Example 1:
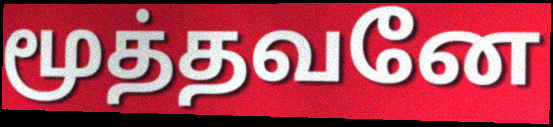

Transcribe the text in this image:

மூத்தவனே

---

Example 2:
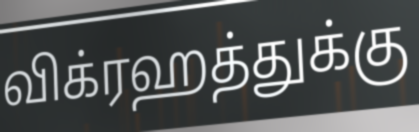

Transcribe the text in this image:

விக்ரஹத்துக்கு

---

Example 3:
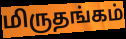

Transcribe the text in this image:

மிருதங்கம்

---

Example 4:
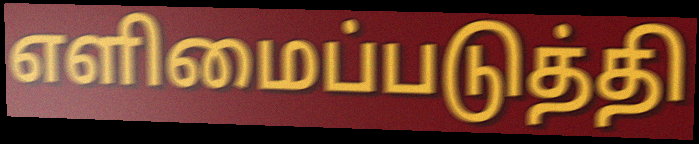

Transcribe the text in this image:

எளிமைப்படுத்தி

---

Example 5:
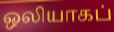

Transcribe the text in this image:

ஒலியாகப்